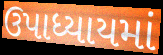
ઉપાધ્યાયમાં